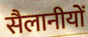
सैलानीयों